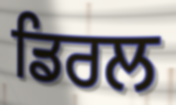
ਡਿਰਲ